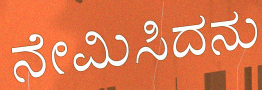
ನೇಮಿಸಿದನು